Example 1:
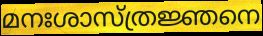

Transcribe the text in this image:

മനഃശാസ്ത്രജ്ഞനെ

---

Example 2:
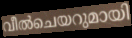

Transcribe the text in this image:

വീൽചെയറുമായി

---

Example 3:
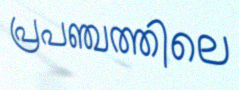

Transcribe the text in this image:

പ്രപഞ്ചത്തിലെ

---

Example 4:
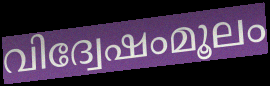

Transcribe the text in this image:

വിദ്വേഷംമൂലം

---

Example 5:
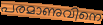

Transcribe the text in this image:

പരമാണുവിനെ